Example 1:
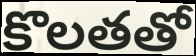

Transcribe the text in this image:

కొలతతో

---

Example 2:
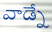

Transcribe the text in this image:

వాడ్నే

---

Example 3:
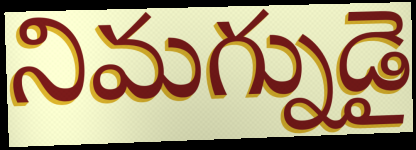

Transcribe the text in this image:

నిమగ్నుడై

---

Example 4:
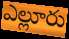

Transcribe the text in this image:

ఎల్లూరు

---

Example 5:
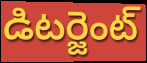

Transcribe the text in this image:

డిటర్జెంట్